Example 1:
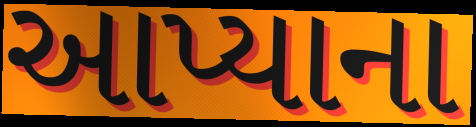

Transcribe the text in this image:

આપ્યાના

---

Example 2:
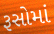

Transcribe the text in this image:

રૂસોમાં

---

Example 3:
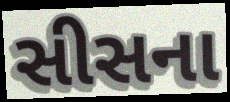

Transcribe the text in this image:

સીસના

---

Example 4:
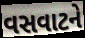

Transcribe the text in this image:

વસવાટને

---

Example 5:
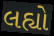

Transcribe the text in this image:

લહ્યો